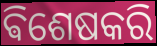
ଵିଶେଷକରି